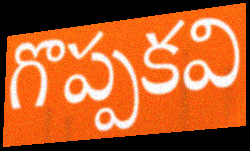
గొప్పకవి